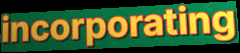
incorporating